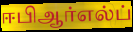
ஈபிஆர்எல்ப்